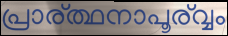
പ്രാര്ത്ഥനാപൂര്വ്വം